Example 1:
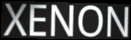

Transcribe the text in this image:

XENON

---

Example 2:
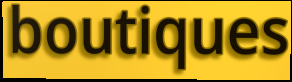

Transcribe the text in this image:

boutiques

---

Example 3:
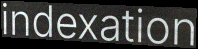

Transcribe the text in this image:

indexation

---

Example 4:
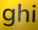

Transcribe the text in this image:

ghi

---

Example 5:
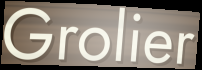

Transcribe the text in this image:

Grolier